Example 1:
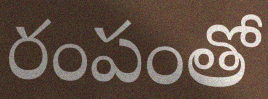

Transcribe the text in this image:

రంపంతో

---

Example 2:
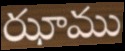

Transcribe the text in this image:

ఝాము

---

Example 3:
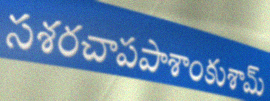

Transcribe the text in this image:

సశరచాపపాశాంకుశామ్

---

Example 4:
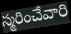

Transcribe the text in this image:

స్మరించేవారి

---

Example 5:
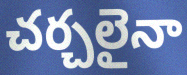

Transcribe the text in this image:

చర్చలైనా